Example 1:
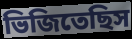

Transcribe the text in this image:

ভিজিতেছিস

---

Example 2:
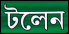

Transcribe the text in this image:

টলেন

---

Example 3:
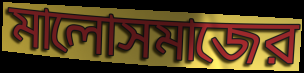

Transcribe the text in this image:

মালোসমাজের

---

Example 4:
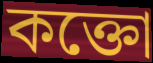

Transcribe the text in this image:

কক্তো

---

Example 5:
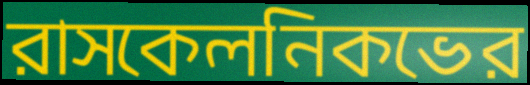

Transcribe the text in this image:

রাসকেলনিকভের